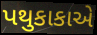
પથુકાકાએ